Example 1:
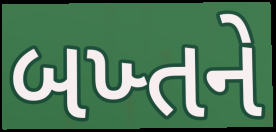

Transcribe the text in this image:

બખ્તને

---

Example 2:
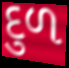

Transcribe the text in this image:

દુળ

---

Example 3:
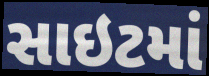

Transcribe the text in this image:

સાઇટમાં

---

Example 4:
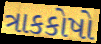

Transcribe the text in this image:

ત્રાકકોષો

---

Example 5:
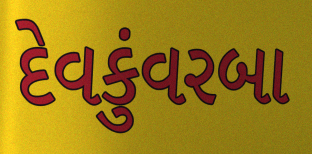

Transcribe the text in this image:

દેવકુંવરબા